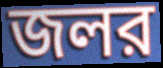
জলর